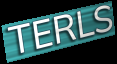
TERLS